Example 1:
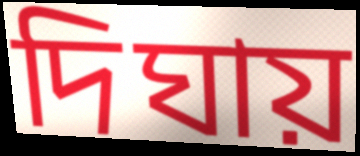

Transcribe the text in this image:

দিঘায়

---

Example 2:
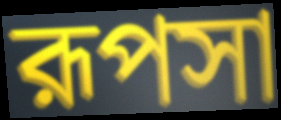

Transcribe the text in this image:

রূপসা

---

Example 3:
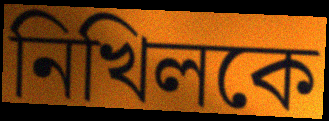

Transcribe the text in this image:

নিখিলকে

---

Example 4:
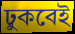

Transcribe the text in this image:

ঢুকবেই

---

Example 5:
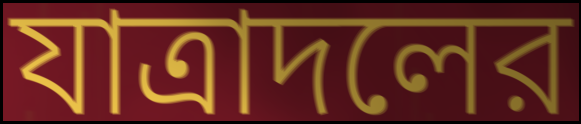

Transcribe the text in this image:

যাত্রাদলের